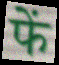
फें